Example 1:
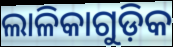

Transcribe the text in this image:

ଲାଳିକାଗୁଡ଼ିକ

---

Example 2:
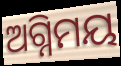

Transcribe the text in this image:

ଅଗ୍ନିମୟ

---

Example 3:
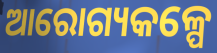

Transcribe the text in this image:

ଆରୋଗ୍ୟକଳ୍ପେ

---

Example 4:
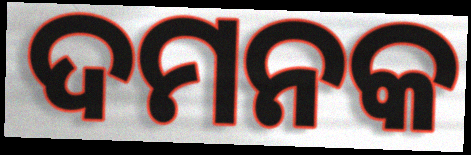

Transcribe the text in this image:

ଦମନକ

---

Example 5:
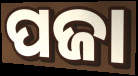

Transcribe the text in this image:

ପଜା